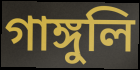
গাঙ্গুলি